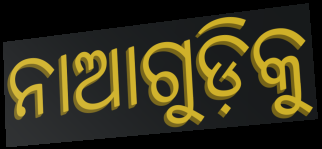
ନାଆଗୁଡ଼ିକୁ